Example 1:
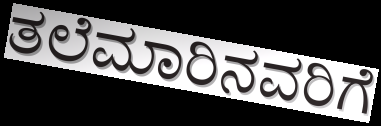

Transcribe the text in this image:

ತಲೆಮಾರಿನವರಿಗೆ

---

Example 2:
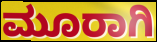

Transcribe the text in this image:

ಮೂರಾಗಿ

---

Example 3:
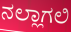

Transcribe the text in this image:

ನಲ್ಲಾಗಲಿ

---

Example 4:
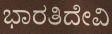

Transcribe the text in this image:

ಭಾರತಿದೇವಿ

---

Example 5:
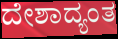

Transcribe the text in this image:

ದೇಶಾದ್ಯಂತ